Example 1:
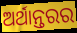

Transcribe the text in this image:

ଅର୍ଥାନ୍ତରର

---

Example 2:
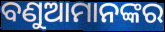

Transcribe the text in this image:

ବଣୁଆମାନଙ୍କର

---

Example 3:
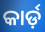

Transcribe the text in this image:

କାର୍ଡ଼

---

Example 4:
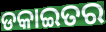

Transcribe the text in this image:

ଡକାଇତର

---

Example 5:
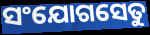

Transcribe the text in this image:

ସଂଯୋଗସେତୁ